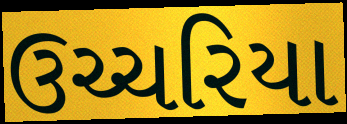
ઉચ્ચરિયા